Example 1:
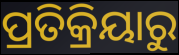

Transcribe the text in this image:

ପ୍ରତିକ୍ରିୟାରୁ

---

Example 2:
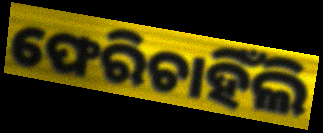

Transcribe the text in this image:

ଫେରିଚାହିଁଲି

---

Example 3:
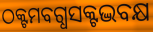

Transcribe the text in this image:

ଠକ୍ଟମବଗ୍ଧସକ୍ଟଦ୍ଭବକ୍ଷ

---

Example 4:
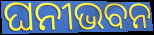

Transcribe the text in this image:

ଘନୀଭବନ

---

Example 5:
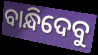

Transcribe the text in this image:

ବାନ୍ଧିଦେବୁ